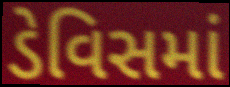
ડેવિસમાં